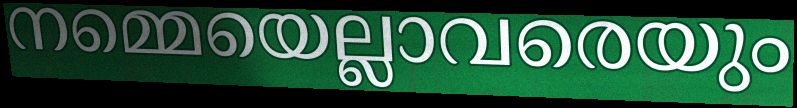
നമ്മെയെല്ലാവരെയും